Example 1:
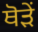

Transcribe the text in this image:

ਥੋੜੇਂ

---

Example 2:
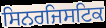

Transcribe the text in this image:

ਸਿਨਰਜਿਸਟਿਕ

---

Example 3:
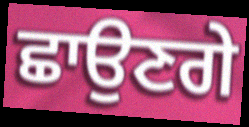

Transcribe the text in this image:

ਛਾਉਣਗੇ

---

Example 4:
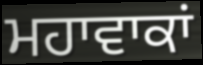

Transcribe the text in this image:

ਮਹਾਵਾਕਾਂ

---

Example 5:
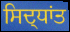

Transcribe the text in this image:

ਸਿਦ੍ਧਾਂਤ